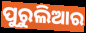
ପୁରୁଲିଆର